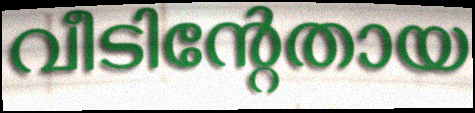
വീടിന്റേതായ